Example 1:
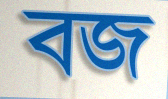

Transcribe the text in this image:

বজ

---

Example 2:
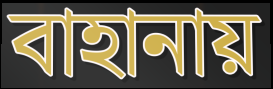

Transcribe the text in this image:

বাহানায়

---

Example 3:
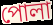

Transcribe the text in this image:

পোলা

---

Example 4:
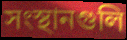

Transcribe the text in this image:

সংস্থানগুলি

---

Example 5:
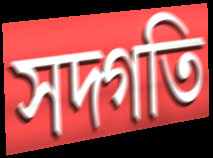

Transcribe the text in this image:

সদ্গতি